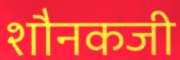
शौनकजी